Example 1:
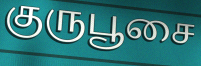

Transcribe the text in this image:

குருபூசை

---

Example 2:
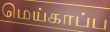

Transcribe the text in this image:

மெய்காப்ப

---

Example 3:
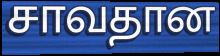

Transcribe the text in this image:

சாவதான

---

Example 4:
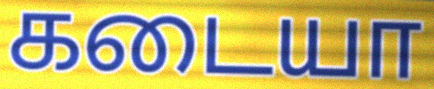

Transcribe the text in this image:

கடையா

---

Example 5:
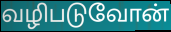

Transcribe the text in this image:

வழிபடுவோன்